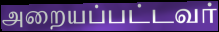
அறையப்பட்டவர்